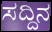
ಸದ್ದಿನ